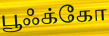
பூஃக்கோ